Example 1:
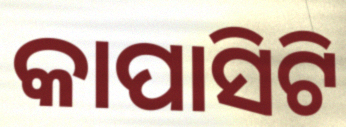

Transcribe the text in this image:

କାପାସିଟି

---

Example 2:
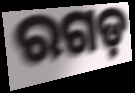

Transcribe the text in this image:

ରଗଡ଼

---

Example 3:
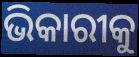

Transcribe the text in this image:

ଭିକାରୀକୁ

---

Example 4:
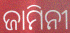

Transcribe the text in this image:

ଜାମିନୀ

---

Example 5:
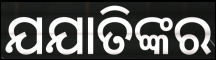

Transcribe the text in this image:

ଯଯାତିଙ୍କର